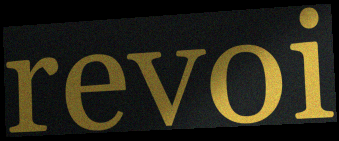
revoi